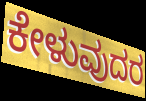
ಕೇಳುವುದರ